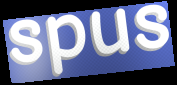
spus